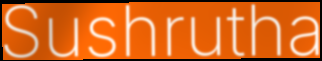
Sushrutha